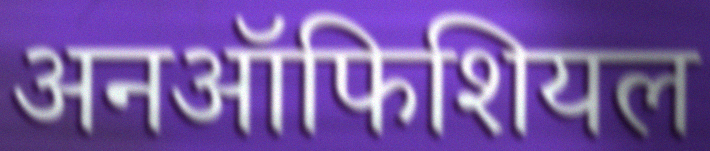
अनऑफिशियल